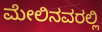
ಮೇಲಿನವರಲ್ಲಿ